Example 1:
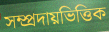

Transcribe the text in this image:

সম্প্রদায়ভিত্তিক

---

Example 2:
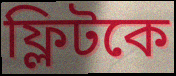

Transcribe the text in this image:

ফ্লিটকে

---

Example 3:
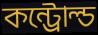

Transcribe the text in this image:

কন্ট্রোল্ড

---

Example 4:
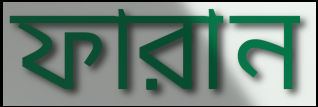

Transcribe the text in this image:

ফারান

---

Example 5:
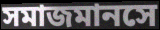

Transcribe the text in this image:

সমাজমানসে